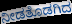
ನೀಡತೊಡಗಿದ